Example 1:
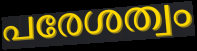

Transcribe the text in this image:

പരേശത്വം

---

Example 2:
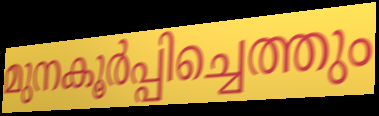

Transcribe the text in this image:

മുനകൂർപ്പിച്ചെത്തും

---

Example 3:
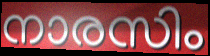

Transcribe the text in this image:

നാരസിം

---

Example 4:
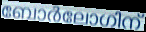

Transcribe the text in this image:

ബോർലോഗിന്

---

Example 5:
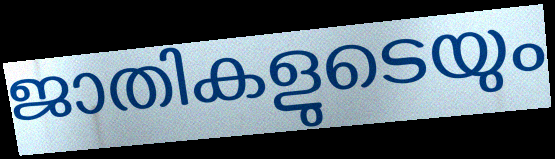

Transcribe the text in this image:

ജാതികളുടെയും